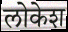
लोकेश